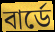
বার্ডে